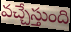
వచ్చేస్తుంది